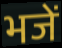
भजें